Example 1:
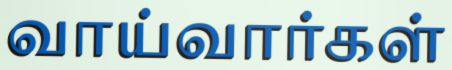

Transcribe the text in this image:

வாய்வார்கள்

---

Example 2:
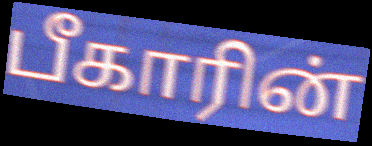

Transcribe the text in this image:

பீகாரின்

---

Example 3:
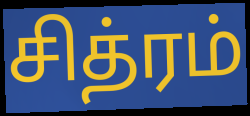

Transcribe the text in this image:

சித்ரம்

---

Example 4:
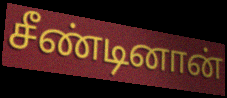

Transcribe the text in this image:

சீண்டினான்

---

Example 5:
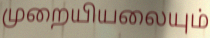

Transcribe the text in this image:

முறையியலையும்